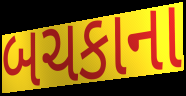
બચકાના